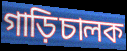
গাড়িচালক